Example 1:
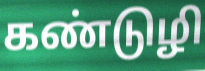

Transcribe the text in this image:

கண்டுழி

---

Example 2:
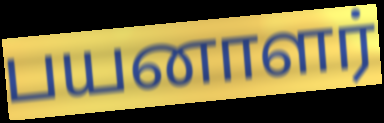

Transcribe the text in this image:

பயனாளர்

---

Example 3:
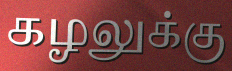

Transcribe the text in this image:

கழலுக்கு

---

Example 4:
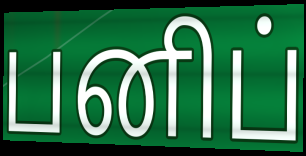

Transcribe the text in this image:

பனிப்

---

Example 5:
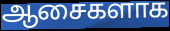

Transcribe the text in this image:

ஆசைகளாக